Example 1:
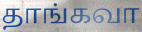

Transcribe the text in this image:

தாங்கவா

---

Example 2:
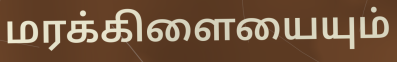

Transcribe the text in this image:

மரக்கிளையையும்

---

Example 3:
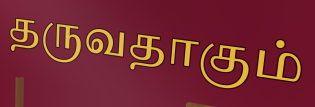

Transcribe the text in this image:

தருவதாகும்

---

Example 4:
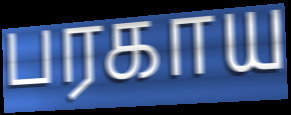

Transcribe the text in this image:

பரகாய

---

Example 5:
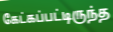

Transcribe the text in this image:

கேட்கப்பட்டிருந்த